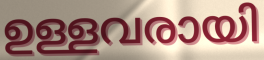
ഉള്ളവരായി